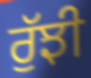
ਰੁੱਝੀ